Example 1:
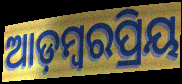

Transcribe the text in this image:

ଆଡ଼ମ୍ବରପ୍ରିୟ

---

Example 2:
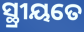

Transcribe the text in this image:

ସ୍ଥ୍ରୀୟତେ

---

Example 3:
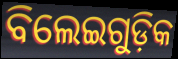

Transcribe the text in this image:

ବିଲେଇଗୁଡ଼ିକ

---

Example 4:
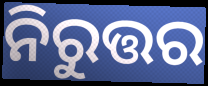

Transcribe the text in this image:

ନିରୁତ୍ତର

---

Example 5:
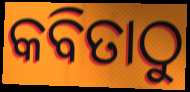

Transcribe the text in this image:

କବିତାଠୁ